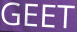
GEET